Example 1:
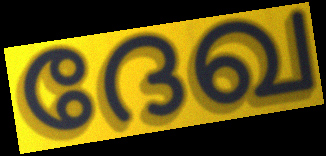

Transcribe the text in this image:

ദേഖ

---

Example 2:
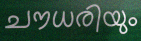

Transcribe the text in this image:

ചൗധരിയും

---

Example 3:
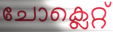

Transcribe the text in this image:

ചോക്ലെറ്റ്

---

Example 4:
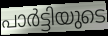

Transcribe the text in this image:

പാർട്ടിയുടെ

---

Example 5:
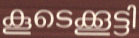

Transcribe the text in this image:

കൂടെക്കൂട്ടി